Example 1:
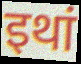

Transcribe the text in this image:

इथां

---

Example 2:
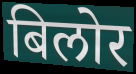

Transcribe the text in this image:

बिलोर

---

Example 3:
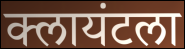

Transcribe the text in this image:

क्लायंटला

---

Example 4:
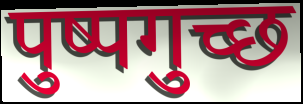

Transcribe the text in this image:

पुष्पगुच्छ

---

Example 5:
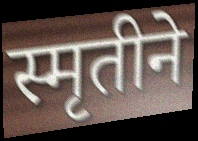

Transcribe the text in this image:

स्मृतीने